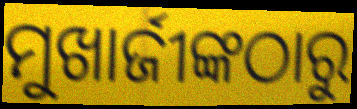
ମୁଖାର୍ଜୀଙ୍କଠାରୁ